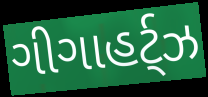
ગીગાહર્ટ્ઝ